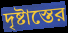
দৃষ্টাস্তের